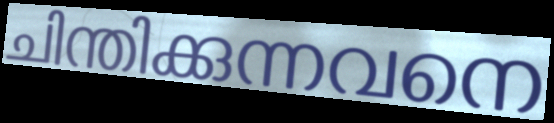
ചിന്തിക്കുന്നവനെ